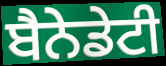
ਬੈਨੇਡੇਟੀ